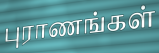
புராணங்கள்